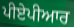
ਪੀਏਪੀਆਰ